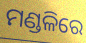
ମଣ୍ଡଳିରେ